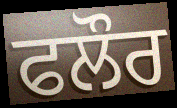
ਫਲੌਰ